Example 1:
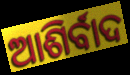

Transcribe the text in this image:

ଆଶିର୍ବାଦ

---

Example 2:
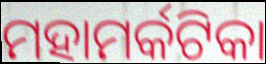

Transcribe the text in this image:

ମହାମର୍କଟିକା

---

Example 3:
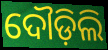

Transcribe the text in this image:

ଦୌଡ଼ିଲି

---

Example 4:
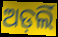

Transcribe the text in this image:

ଅଡ଼ର୍ଲି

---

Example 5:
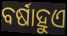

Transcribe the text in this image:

ବର୍ଷାହୁଏ